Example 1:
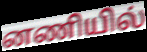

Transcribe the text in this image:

னணியில்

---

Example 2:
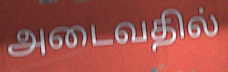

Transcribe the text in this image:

அடைவதில்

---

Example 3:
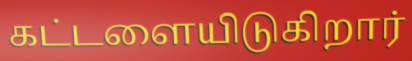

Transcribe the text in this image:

கட்டளையிடுகிறார்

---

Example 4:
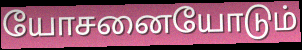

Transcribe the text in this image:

யோசனையோடும்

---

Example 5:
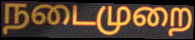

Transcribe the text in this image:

நடைமுறை